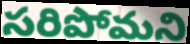
సరిపోమని